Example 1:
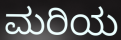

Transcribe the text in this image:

ಮರಿಯ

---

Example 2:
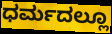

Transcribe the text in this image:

ಧರ್ಮದಲ್ಲೂ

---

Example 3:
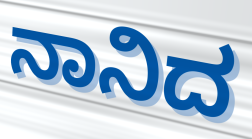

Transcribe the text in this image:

ನಾನಿದ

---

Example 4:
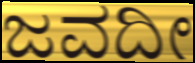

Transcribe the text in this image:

ಜವದೀ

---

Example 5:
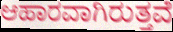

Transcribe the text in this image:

ಆಹಾರವಾಗಿರುತ್ತವೆ